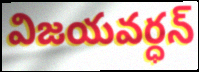
విజయవర్ధన్